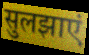
सुलझाएं